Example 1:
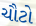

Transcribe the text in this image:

ચૌટો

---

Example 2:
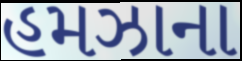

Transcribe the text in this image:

હમઝાના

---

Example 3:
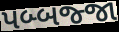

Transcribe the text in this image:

પબ્બજ્જા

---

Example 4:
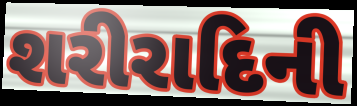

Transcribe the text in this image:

શરીરાદિની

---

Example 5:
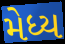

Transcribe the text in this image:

મેધ્ય